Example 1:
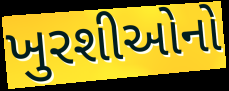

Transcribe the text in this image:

ખુરશીઓનો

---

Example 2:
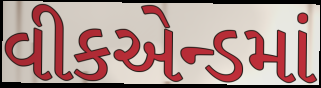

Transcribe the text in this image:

વીકએન્ડમાં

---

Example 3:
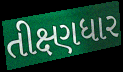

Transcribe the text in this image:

તીક્ષ્ણધાર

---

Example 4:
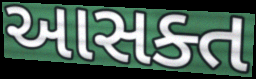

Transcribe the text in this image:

આસક્ત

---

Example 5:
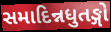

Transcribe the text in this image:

સમાદિન્નધુતઙ્ગો